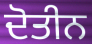
ਦੋਤੀਨ